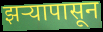
झऱ्यापासून